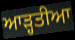
ਆੜ੍ਹਤੀਆ